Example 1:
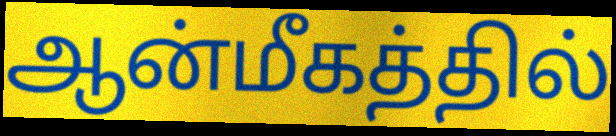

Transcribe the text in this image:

ஆன்மீகத்தில்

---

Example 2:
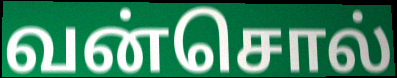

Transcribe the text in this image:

வன்சொல்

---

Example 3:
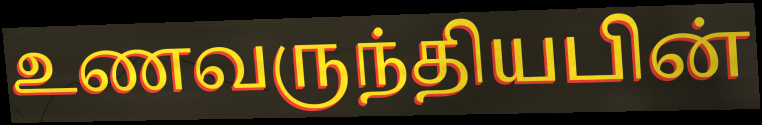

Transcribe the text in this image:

உணவருந்தியபின்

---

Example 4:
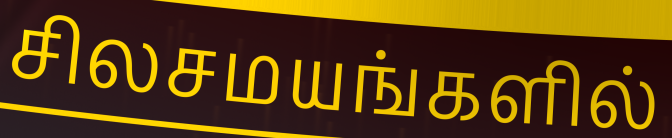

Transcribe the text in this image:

சிலசமயங்களில்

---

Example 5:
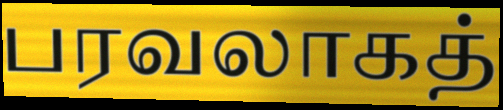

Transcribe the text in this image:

பரவலாகத்